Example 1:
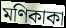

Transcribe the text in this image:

মণিকাকা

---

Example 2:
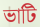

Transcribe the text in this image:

ভাটি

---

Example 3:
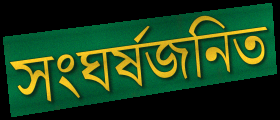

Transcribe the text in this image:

সংঘর্ষজনিত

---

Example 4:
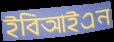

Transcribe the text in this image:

ইবিআইএন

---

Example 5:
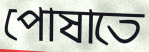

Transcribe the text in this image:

পোষাতে